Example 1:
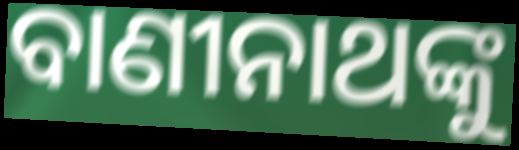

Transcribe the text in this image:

ବାଣୀନାଥଙ୍କୁ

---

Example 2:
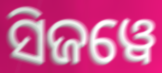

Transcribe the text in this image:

ସିଜୱେ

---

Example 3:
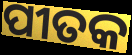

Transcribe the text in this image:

ପୀତକ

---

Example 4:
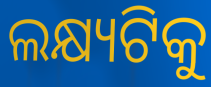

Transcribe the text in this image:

ଲକ୍ଷ୍ୟଟିକୁ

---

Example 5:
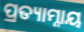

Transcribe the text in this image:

ପ୍ରତ୍ୟାମ୍ନାୟ